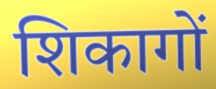
शिकागों